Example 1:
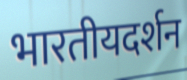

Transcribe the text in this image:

भारतीयदर्शन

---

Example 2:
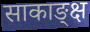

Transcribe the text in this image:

साकाङ्क्ष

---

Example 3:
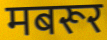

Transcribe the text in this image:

मबरूर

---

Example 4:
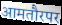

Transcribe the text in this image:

आमतौरपर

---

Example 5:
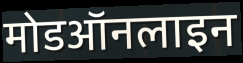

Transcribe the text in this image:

मोडऑनलाइन